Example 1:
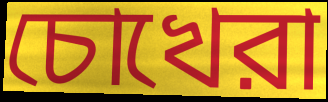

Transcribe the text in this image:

চোখেরা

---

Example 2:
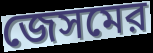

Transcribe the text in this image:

জেসমের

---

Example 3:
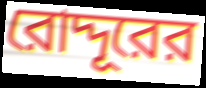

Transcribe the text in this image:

রোদ্দূরের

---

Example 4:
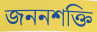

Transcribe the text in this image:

জননশক্তি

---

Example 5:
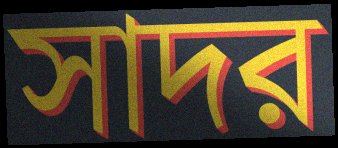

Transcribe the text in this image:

সাদর